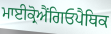
ਮਾਈਕ੍ਰੋਐਂਗਿਓਪੈਥਿਕ